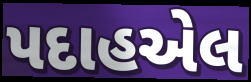
પદાહએલ